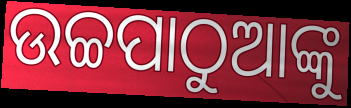
ଉଚ୍ଚପାଠୁଆଙ୍କୁ